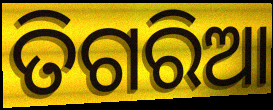
ତିଗରିଆ